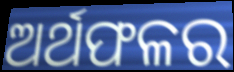
ଅର୍ଥଫଳର